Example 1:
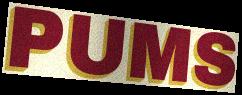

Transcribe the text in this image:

PUMS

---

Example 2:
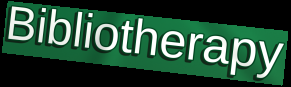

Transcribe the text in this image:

Bibliotherapy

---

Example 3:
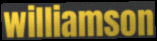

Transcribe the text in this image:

williamson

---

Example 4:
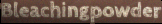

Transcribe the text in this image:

Bleachingpowder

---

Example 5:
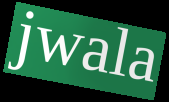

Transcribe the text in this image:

jwala